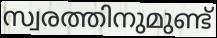
സ്വരത്തിനുമുണ്ട്